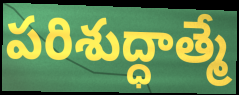
పరిశుద్ధాత్మే